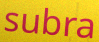
subra